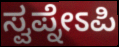
ಸ್ವಪ್ನೇಽಪಿ